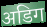
अडिग